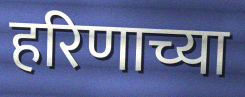
हरिणाच्या